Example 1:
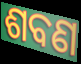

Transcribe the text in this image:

ଶବଣ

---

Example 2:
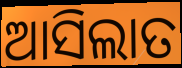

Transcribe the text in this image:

ଆସିଲାତ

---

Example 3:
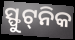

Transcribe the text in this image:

ସ୍ଫୁଟ୍‌ନିକ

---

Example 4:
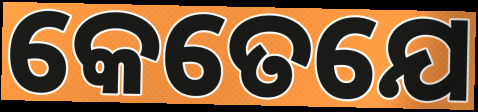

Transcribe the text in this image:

କେତେଯେ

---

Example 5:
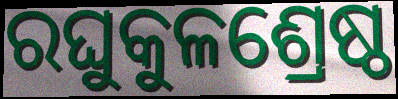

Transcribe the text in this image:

ରଘୁକୁଳଶ୍ରେଷ୍ଠ